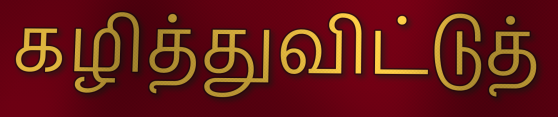
கழித்துவிட்டுத்